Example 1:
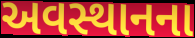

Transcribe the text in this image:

અવસ્થાનના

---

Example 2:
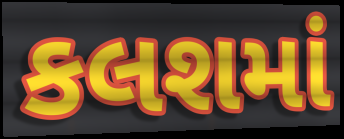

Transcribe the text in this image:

કલશમાં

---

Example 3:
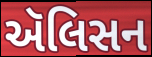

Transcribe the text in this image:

ઍલિસન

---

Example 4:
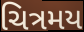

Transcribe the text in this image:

ચિત્રમય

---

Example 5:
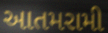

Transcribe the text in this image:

આતમરામી